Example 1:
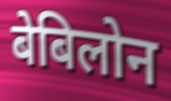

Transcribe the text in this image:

बेबिलोन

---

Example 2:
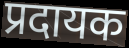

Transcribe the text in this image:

प्रदायक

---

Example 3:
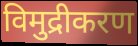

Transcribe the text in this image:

विमुद्रीकरण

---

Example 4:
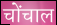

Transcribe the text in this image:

चोंचाल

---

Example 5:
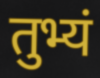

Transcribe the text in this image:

तुभ्यं